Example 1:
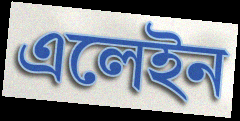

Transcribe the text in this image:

এলেইন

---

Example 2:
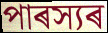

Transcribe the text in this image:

পাৰস্যৰ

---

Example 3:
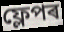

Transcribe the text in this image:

ফ্লেপৰ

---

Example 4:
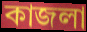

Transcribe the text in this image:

কাজলা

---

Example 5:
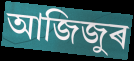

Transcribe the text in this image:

আজিজুৰ